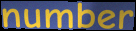
number